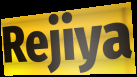
Rejiya